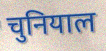
चुनियाल